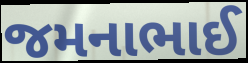
જમનાભાઈ